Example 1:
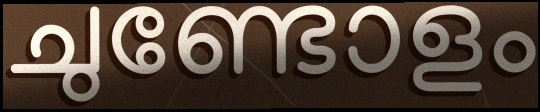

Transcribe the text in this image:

ചുണ്ടോളം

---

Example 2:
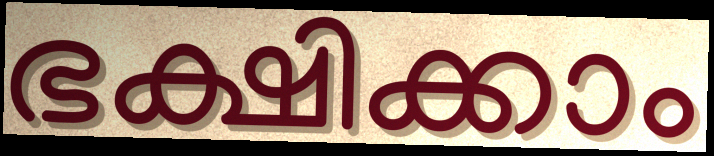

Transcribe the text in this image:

ഭക്ഷിക്കാം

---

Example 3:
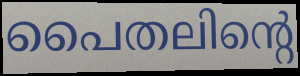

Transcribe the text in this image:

പൈതലിന്റെ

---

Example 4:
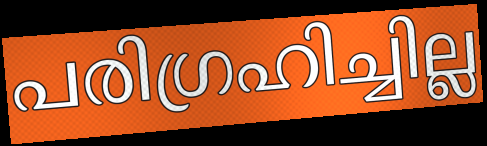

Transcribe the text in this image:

പരിഗ്രഹിച്ചില്ല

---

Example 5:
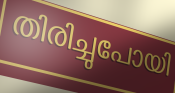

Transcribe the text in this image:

തിരിച്ചുപോയി